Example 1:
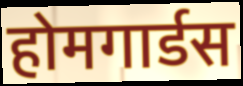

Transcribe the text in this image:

होमगार्डस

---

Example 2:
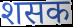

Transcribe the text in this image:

शसक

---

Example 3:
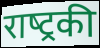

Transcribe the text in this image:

राष्ट्रकी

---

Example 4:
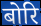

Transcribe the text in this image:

बोरि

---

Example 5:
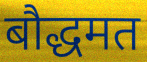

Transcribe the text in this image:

बौद्धमत